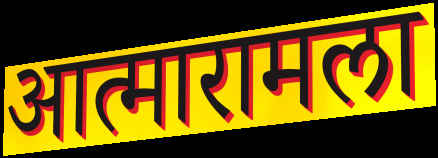
आत्मारामला